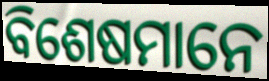
ବିଶେଷମାନେ